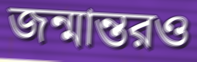
জন্মান্তরও